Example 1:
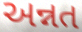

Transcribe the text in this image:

અન્નત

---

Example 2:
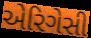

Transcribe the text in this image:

એરિગેસી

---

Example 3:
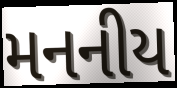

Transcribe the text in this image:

મનનીય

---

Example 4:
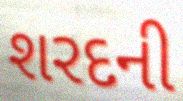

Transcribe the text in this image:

શરદની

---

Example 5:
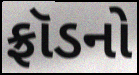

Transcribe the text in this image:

ફ્રૉડનો